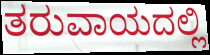
ತರುವಾಯದಲ್ಲಿ